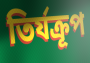
তির্যক্রূপ